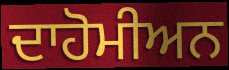
ਦਾਹੋਮੀਅਨ